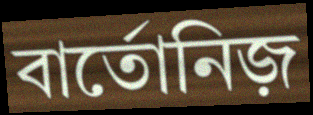
বার্তোনিজ়